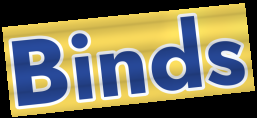
Binds